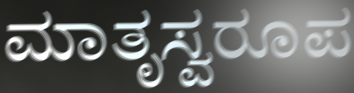
ಮಾತೃಸ್ವರೂಪ